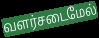
வளர்சடைமேல்